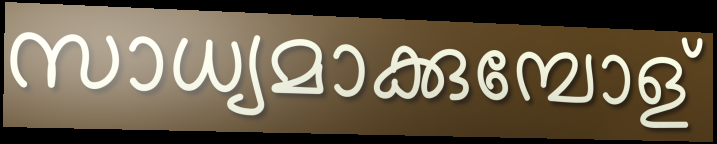
സാധ്യമാക്കുമ്പോള്